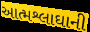
આત્મશ્લાઘાની